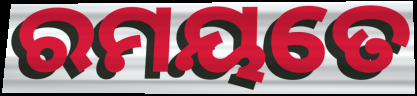
ରମୟତେ